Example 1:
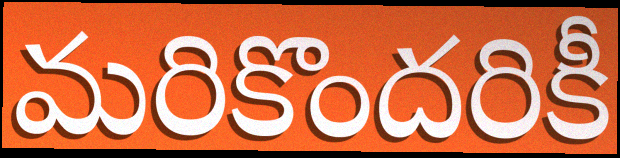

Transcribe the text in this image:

మరికొందరికీ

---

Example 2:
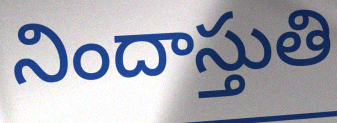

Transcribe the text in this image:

నిందాస్తుతి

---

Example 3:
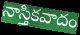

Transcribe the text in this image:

నాస్తికవాదం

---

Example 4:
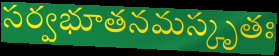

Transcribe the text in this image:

సర్వభూతనమస్కృతః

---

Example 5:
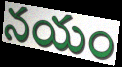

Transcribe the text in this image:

నయం